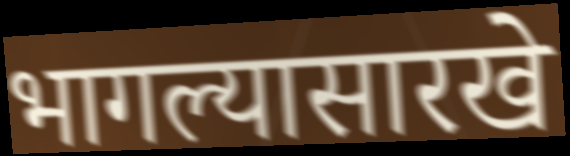
भागल्यासारखे